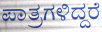
ಪಾತ್ರಗಳಿದ್ದರೆ